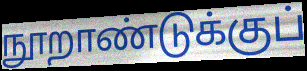
நூறாண்டுக்குப்